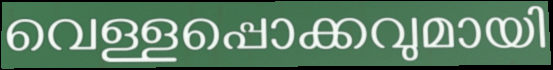
വെള്ളപ്പൊക്കവുമായി